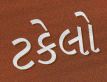
ટકેલો